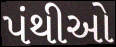
પંથીઓ